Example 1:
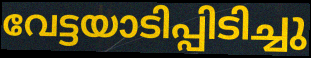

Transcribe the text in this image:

വേട്ടയാടിപ്പിടിച്ചു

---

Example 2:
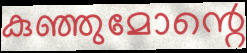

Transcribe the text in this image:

കുഞ്ഞുമോന്റെ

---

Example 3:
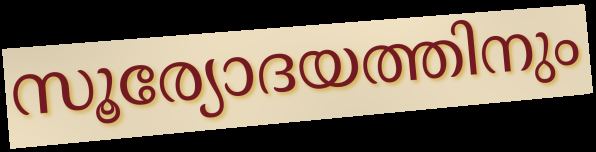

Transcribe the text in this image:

സൂര്യോദയത്തിനും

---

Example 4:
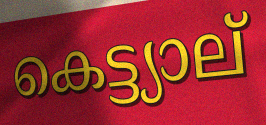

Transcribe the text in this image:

കെട്ട്യാല്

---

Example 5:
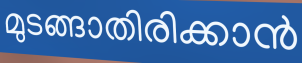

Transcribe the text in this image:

മുടങ്ങാതിരിക്കാൻ